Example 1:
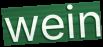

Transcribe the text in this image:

wein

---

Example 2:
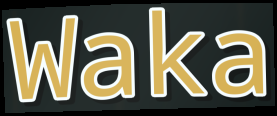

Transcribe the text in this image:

Waka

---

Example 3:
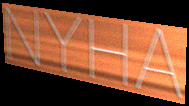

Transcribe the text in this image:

NYHA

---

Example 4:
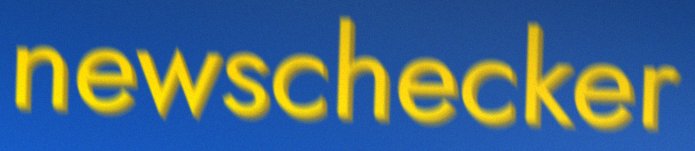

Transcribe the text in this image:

newschecker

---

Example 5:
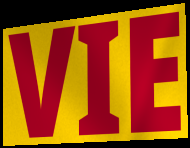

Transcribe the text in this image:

VIE